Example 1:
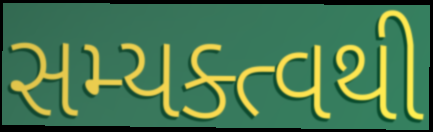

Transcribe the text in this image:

સમ્યક્ત્વથી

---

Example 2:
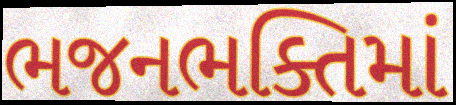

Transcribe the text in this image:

ભજનભક્તિમાં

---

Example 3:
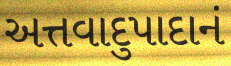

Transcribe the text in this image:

અત્તવાદુપાદાનં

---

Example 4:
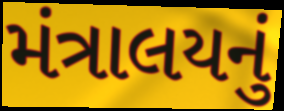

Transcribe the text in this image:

મંત્રાલયનું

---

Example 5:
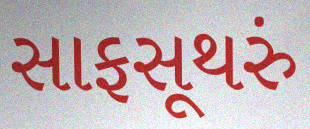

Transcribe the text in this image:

સાફસૂથરું